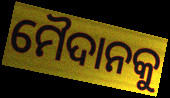
ମୈଦାନକୁ